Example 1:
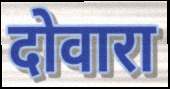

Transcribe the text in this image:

दोवारा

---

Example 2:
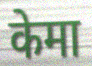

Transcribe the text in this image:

केमा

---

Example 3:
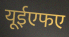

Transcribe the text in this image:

यूईएफए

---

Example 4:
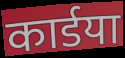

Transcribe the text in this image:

कार्डया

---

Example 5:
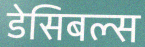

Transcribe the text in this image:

डेसिबल्स